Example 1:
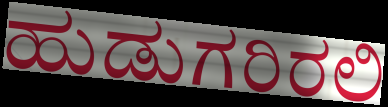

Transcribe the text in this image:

ಹುಡುಗರಿರಲಿ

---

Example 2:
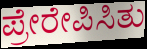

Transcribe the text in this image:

ಪ್ರೇರೇಪಿಸಿತು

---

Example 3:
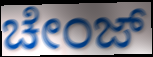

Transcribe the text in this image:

ಚೇಂಜ್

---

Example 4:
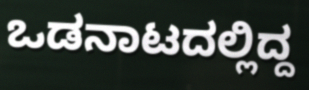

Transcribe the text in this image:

ಒಡನಾಟದಲ್ಲಿದ್ದ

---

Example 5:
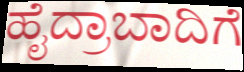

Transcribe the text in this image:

ಹೈದ್ರಾಬಾದಿಗೆ